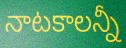
నాటకాలన్నీ